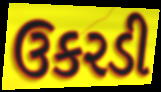
ઉકરડી